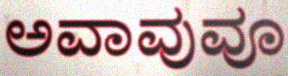
ಅವಾವುವೂ